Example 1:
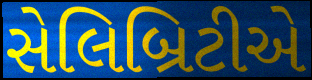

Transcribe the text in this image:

સેલિબ્રિટીએ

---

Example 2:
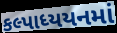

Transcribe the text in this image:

કલ્પાધ્યયનમાં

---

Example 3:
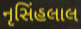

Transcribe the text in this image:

નૃસિંહલાલ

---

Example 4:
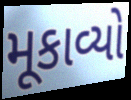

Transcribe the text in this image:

મૂકાવ્યો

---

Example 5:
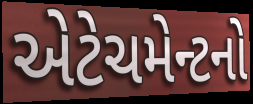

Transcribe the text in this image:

એટેચમેન્ટનો